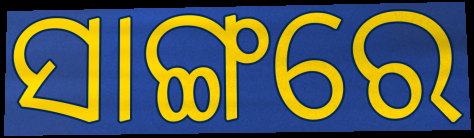
ସାଙ୍ଗରେ